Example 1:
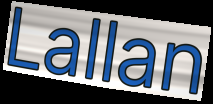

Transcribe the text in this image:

Lallan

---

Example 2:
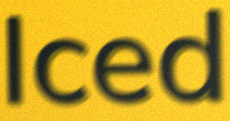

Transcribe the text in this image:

Iced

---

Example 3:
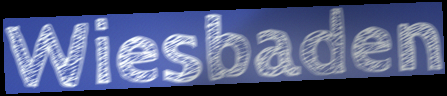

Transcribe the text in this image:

Wiesbaden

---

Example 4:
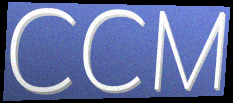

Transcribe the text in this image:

CCM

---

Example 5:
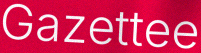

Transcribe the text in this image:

Gazettee